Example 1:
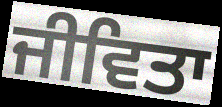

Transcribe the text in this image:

ਜੀਵਿਤਾ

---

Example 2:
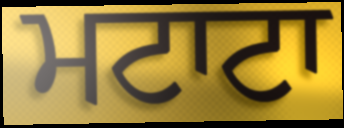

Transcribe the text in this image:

ਮਟਾਟਾ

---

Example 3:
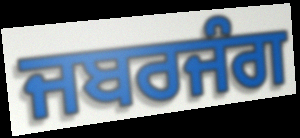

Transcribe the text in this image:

ਜਬਰਜੰਗ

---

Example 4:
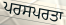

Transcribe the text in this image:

ਪਰਸਪਰਤਾ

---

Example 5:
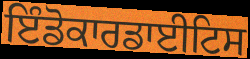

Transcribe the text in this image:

ਇੰਡੋਕਾਰਡਾਈਟਿਸ